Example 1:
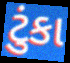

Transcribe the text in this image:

ટુંકા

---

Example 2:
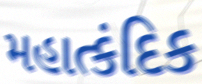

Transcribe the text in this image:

મહાત્કંદિક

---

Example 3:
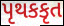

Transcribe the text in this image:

પૃથકકૃત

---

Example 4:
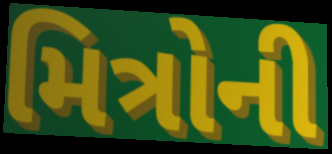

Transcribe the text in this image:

મિત્રોની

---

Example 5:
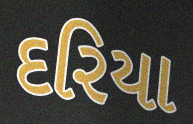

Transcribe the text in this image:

દરિયા